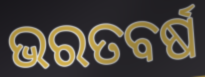
ଭରତବର୍ଷ